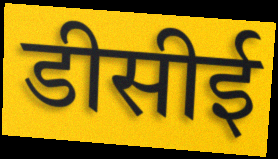
डीसीई